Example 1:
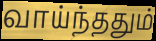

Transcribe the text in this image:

வாய்ந்ததும்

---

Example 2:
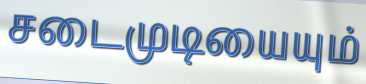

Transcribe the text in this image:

சடைமுடியையும்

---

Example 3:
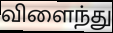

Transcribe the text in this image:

விளைந்து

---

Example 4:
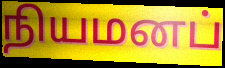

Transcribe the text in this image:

நியமனப்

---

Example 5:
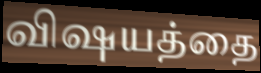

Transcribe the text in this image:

விஷயத்தை